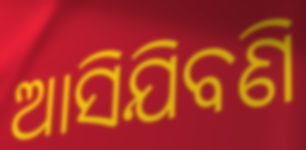
ଆସିଯିବଣି